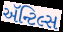
ઍન્ટિલ્સ